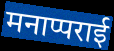
मनाप्पराई